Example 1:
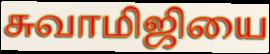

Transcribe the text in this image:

சுவாமிஜியை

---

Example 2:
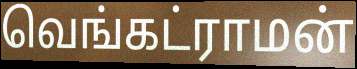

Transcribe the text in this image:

வெங்கட்ராமன்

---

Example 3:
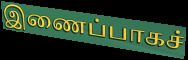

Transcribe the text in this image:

இணைப்பாகச்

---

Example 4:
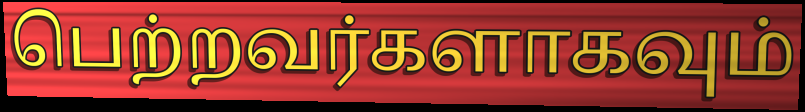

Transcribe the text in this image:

பெற்றவர்களாகவும்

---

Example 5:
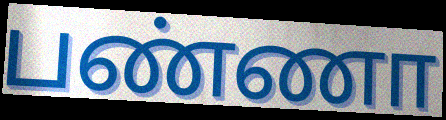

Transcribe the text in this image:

பண்ணா